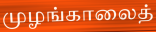
முழங்காலைத்